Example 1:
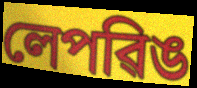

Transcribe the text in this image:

লেপৱিঙ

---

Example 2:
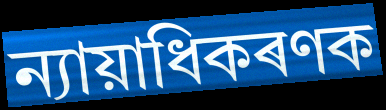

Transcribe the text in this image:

ন্যায়াধিকৰণক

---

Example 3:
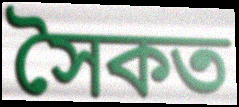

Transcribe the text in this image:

সৈকত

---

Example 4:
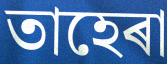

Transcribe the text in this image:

তাহেৰা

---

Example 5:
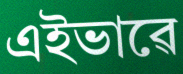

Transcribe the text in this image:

এইভাৱে